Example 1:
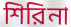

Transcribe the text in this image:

শিরিনা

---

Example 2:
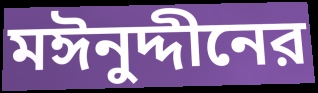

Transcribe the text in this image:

মঈনুদ্দীনের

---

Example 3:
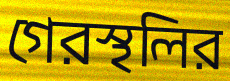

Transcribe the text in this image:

গেরস্থলির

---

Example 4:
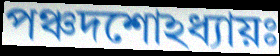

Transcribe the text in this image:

পঞ্চদশোঽধ্যায়ঃ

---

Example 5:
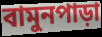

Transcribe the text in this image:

বামুনপাড়া